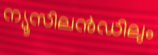
ന്യൂസിലൻഡിലും